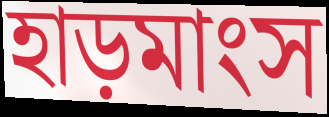
হাড়মাংস